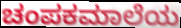
ಚಂಪಕಮಾಲೆಯ